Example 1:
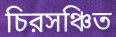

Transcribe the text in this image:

চিরসঞ্চিত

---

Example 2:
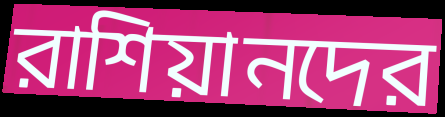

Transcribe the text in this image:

রাশিয়ানদের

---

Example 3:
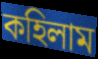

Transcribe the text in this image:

কহিলাম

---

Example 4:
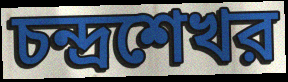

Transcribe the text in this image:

চন্দ্রশেখর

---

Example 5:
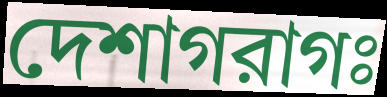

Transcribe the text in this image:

দেশাগরাগঃ